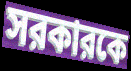
সরকারকে